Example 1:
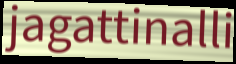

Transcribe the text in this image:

jagattinalli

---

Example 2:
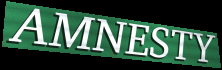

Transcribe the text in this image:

AMNESTY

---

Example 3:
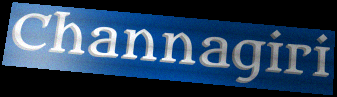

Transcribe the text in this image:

Channagiri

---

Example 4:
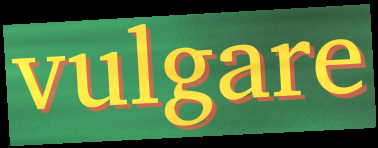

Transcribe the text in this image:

vulgare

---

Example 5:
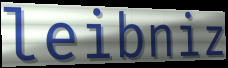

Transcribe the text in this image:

leibniz